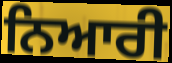
ਨਿਆਰੀ